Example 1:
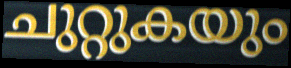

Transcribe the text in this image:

ചുറ്റുകയും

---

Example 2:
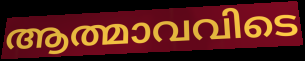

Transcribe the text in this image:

ആത്മാവവിടെ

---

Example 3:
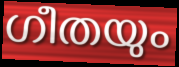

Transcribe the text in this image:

ഗീതയും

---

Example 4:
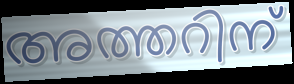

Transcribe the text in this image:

അത്തറിന്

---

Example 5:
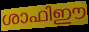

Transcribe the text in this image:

ശാഫിഈ